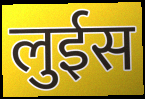
लुईस